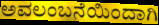
ಅವಲಂಬನೆಯಿಂದಾಗಿ